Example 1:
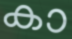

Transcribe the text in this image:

കാ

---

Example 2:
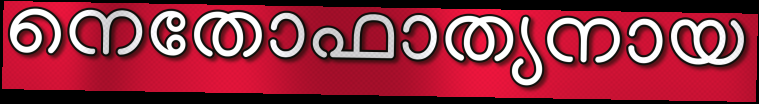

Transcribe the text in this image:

നെതോഫാത്യനായ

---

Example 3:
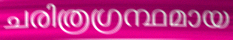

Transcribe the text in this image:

ചരിത്രഗ്രന്ഥമായ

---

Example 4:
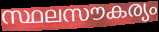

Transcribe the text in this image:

സ്ഥലസൗകര്യം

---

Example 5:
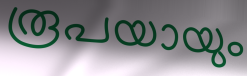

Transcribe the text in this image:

രൂപയായും